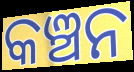
କଞ୍ଚନ